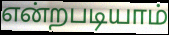
என்றபடியாம்